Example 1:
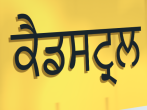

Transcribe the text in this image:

ਕੈਡਸਟ੍ਰਲ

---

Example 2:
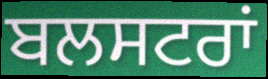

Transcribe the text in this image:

ਬਲਸਟਰਾਂ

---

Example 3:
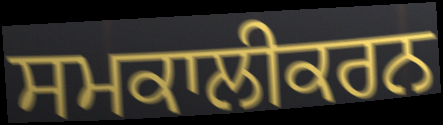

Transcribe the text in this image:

ਸਮਕਾਲੀਕਰਨ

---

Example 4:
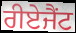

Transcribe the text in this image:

ਰੀਏਜੈਂਟ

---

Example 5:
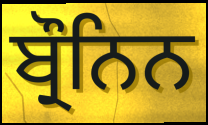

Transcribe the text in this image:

ਬ੍ਰੌਨਿਨ